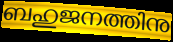
ബഹുജനത്തിനു